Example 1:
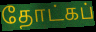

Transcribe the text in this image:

தோட்கப்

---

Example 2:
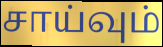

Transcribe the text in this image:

சாய்வும்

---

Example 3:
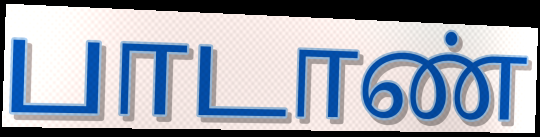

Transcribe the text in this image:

பாடாண்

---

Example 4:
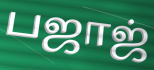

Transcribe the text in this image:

பஜாஜ்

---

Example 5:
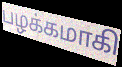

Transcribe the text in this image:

பழக்கமாகி